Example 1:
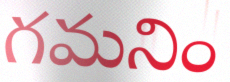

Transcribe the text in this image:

గమనిం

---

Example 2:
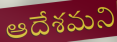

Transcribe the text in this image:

ఆదేశమని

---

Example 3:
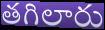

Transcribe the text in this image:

తగిలారు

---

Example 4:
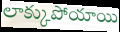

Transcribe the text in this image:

లాక్కుపోయాయి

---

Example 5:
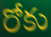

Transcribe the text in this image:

రోకు